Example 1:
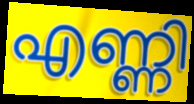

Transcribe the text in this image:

എണ്ണി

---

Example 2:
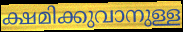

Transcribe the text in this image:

ക്ഷമിക്കുവാനുള്ള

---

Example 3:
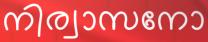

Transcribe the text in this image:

നിര്വാസനോ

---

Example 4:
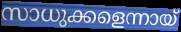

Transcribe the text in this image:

സാധുക്കളെന്നായ്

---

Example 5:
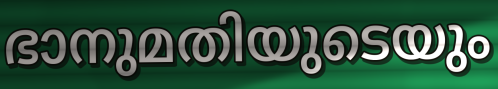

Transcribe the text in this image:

ഭാനുമതിയുടെയും